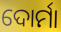
ଦୋର୍ମା